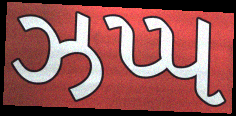
ઝપ્પ